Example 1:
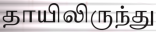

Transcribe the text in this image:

தாயிலிருந்து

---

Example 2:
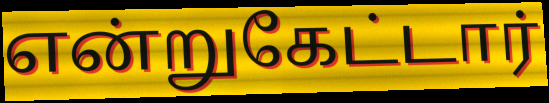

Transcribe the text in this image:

என்றுகேட்டார்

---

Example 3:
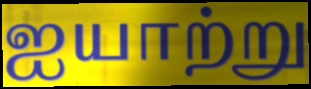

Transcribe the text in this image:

ஐயாற்று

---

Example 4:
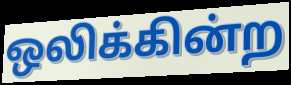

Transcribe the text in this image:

ஒலிக்கின்ற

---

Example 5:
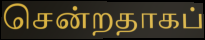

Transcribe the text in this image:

சென்றதாகப்